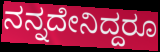
ನನ್ನದೇನಿದ್ದರೂ